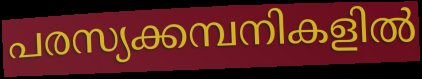
പരസ്യക്കമ്പനികളിൽ